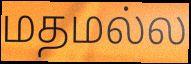
மதமல்ல